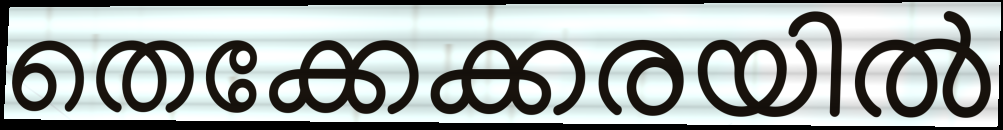
തെക്കേക്കരയിൽ